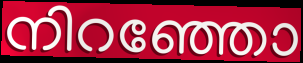
നിറഞ്ഞോ